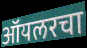
ऑयलरचा